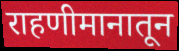
राहणीमानातून